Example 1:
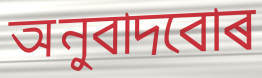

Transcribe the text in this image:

অনুবাদবোৰ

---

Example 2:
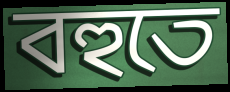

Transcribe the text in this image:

বহুতে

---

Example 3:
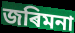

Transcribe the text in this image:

জৰিমনা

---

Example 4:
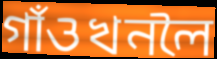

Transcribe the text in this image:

গাঁওখনলৈ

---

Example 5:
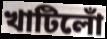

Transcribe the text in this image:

খাটিলোঁ